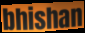
bhishan